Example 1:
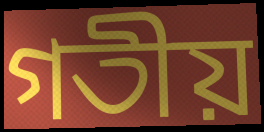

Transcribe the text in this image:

গতীয়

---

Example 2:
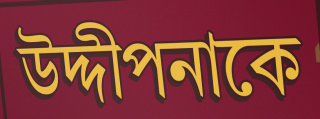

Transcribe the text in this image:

উদ্দীপনাকে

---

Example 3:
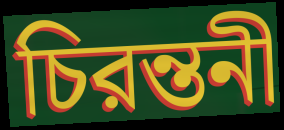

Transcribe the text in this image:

চিরন্তনী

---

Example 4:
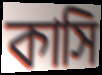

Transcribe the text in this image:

কাসি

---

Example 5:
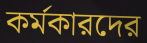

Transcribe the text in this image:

কর্মকারদের